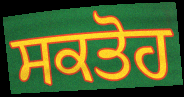
ਸਕਤੋਹ